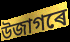
উজাগৰে